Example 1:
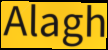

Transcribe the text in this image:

Alagh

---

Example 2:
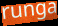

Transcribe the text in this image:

runga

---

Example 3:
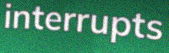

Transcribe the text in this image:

interrupts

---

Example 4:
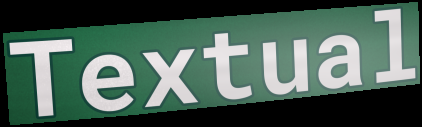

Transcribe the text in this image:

Textual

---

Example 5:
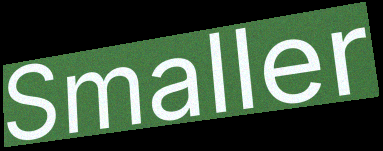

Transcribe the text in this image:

Smaller